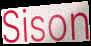
Sison